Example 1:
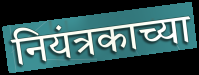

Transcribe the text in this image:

नियंत्रकाच्या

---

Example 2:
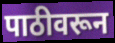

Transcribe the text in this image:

पाठीवरून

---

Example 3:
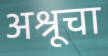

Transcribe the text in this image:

अश्रूचा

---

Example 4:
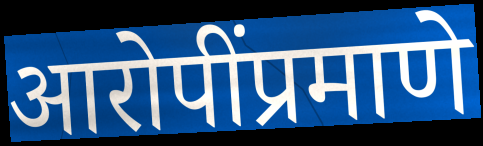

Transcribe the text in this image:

आरोपींप्रमाणे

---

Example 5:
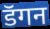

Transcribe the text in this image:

डॅगन